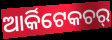
ଆର୍କିଟେକଚର୍